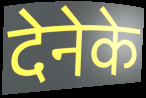
देनेके